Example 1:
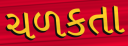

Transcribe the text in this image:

ચળકતા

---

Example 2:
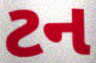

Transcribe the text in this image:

ટન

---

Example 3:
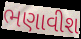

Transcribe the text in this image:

ભણાવીશ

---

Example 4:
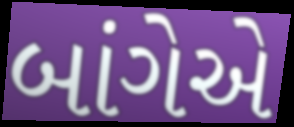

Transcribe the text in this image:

બાંગેએ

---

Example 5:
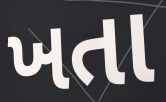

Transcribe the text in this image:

ખતા